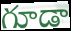
గూడా